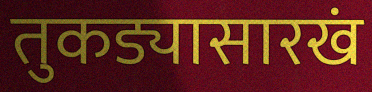
तुकड्यासारखं